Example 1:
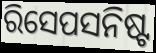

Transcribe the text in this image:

ରିସେପସନିଷ୍ଟ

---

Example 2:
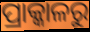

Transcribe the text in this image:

ପ୍ରାକ୍କାଳରୁ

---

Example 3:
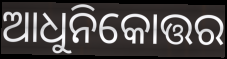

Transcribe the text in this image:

ଆଧୁନିକୋତ୍ତର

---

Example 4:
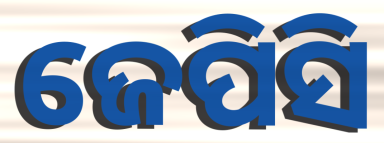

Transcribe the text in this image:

ଜେପିସି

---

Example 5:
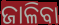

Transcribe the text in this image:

ଜାଳିବା